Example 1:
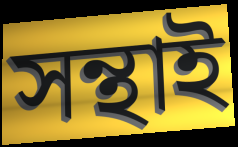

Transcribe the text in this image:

সন্থাই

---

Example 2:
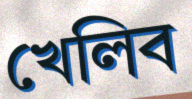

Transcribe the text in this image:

খেলিব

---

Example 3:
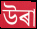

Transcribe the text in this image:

উৰা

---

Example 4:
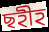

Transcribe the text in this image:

ছহীহ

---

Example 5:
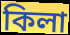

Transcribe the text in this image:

কিলা